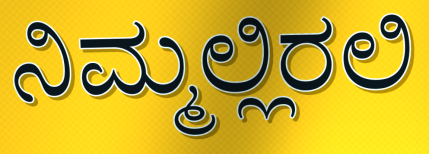
ನಿಮ್ಮಲ್ಲಿರಲಿ